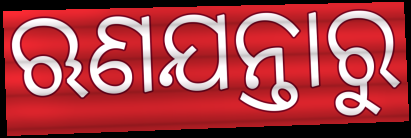
ଋଣଯନ୍ତାରୁ